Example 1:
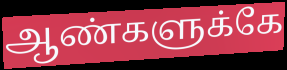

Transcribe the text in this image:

ஆண்களுக்கே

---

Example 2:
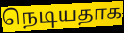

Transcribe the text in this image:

நெடியதாக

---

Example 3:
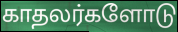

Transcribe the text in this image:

காதலர்களோடு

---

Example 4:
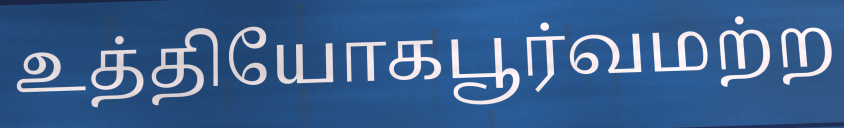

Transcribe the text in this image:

உத்தியோகபூர்வமற்ற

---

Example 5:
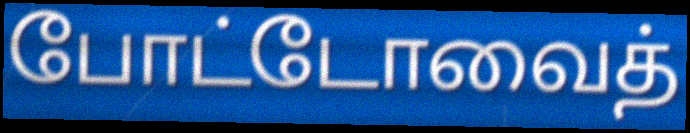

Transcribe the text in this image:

போட்டோவைத்